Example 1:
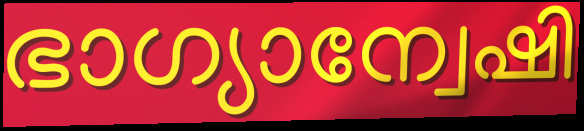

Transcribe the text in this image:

ഭാഗ്യാന്വേഷി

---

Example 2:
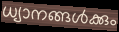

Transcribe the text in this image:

ധ്യാനങ്ങൾക്കും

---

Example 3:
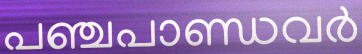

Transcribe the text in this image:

പഞ്ചപാണ്ഡവർ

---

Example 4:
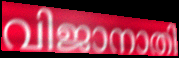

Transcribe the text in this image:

വിജാനാതി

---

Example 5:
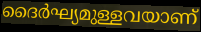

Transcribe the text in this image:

ദൈർഘ്യമുള്ളവയാണ്